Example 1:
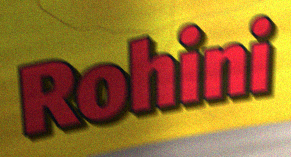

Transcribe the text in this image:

Rohini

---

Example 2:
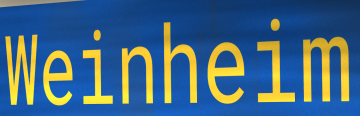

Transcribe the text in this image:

Weinheim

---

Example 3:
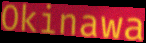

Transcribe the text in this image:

Okinawa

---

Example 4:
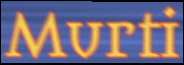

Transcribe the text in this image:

Murti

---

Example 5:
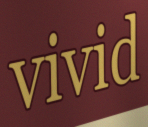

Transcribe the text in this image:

vivid